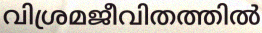
വിശ്രമജീവിതത്തിൽ